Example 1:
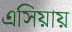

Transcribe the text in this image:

এসিয়ায়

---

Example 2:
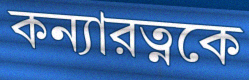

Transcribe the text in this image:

কন্যারত্নকে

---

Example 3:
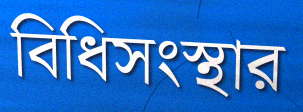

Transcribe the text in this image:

বিধিসংস্থার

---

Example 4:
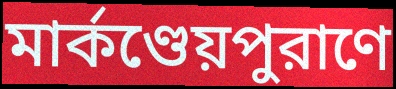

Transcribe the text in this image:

মার্কণ্ডেয়পুরাণে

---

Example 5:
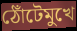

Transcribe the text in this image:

ঠোঁটেমুখে